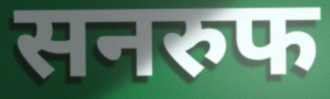
सनरुफ